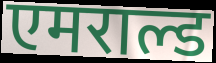
एमराल्ड